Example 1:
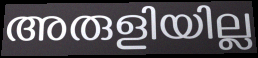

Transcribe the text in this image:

അരുളിയില്ല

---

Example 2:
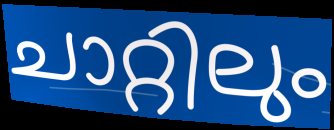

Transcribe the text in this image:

ചാറ്റിലും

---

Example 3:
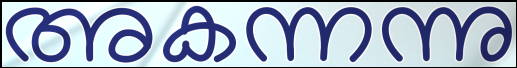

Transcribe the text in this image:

അകന്നന്നു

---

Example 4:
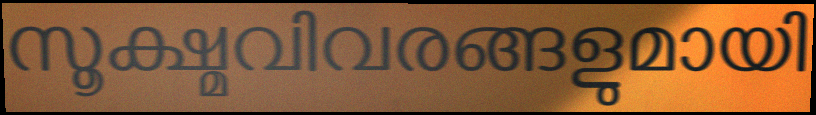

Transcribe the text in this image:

സൂക്ഷ്മവിവരങ്ങളുമായി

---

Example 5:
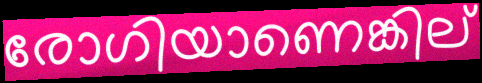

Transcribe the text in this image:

രോഗിയാണെങ്കില്